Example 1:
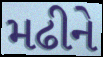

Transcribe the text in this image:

મઢીને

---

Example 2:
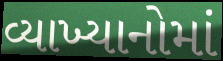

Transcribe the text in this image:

વ્યાખ્યાનોમાં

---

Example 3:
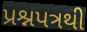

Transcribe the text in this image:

પ્રશ્નપત્રથી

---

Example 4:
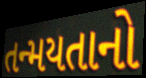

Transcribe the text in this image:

તન્મયતાનો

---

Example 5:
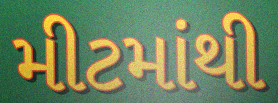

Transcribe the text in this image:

મીટમાંથી